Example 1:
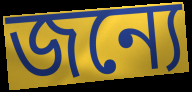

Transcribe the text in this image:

জন্যে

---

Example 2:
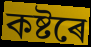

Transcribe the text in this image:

কষ্টৰে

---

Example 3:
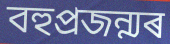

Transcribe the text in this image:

বহুপ্ৰজন্মৰ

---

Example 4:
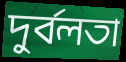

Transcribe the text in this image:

দুৰ্বলতা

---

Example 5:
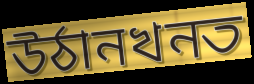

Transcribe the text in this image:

উঠানখনত